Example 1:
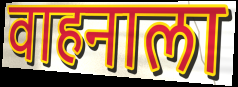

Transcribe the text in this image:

वाहनाला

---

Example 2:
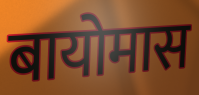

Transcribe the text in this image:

बायोमास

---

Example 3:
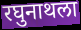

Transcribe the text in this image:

रघुनाथला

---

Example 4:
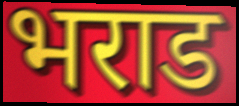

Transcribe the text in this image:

भराड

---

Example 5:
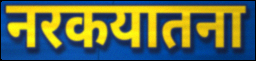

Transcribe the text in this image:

नरकयातना